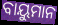
ବାୟୁମାନ